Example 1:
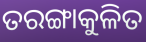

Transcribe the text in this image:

ତରଙ୍ଗାକୁଳିତ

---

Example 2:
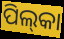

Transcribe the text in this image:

ପିଲ୍‌କା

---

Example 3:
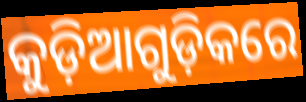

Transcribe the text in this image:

କୁଡ଼ିଆଗୁଡ଼ିକରେ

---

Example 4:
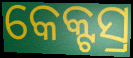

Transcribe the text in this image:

କେକ୍ଟସ୍ର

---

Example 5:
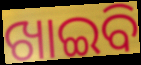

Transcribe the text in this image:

ଖାଇବି